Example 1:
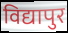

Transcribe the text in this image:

विद्यापुर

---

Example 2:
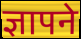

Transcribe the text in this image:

ज्ञापने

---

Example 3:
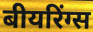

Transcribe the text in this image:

बीयरिंग्स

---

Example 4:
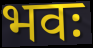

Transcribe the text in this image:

भवः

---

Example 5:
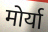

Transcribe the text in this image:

मोर्या